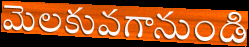
మెలకువగానుండి